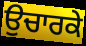
ਉਚਾਰਕੇ